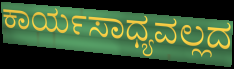
ಕಾರ್ಯಸಾಧ್ಯವಲ್ಲದ